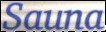
Sauna